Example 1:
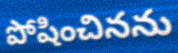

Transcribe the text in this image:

పోషించినను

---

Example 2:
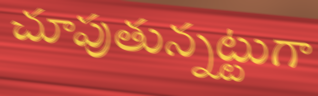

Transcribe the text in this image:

చూపుతున్నట్టుగా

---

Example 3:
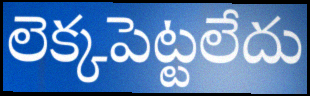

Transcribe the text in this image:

లెక్కపెట్టలేదు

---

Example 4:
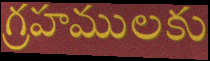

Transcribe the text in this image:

గ్రహములకు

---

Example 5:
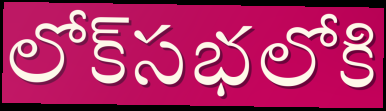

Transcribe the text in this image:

లోక్‌సభలోకి